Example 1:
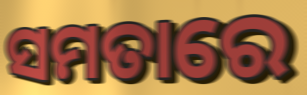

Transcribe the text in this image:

ସମତାରେ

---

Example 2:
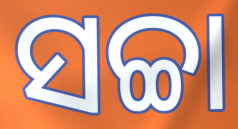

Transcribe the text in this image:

ସଚ୍ଚା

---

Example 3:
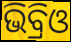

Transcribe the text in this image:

ଭିବ୍ରିଓ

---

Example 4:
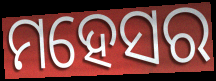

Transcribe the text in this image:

ମହେସର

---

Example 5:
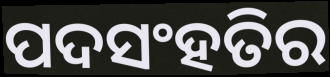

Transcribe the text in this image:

ପଦସଂହତିର